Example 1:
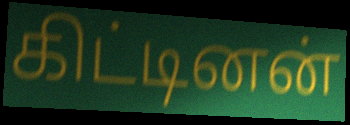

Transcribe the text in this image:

கிட்டினன்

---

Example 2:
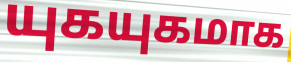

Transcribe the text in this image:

யுகயுகமாக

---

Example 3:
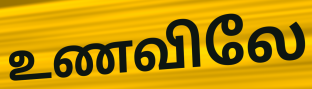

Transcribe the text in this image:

உணவிலே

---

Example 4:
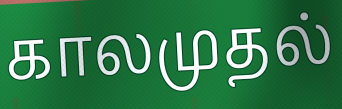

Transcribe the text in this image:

காலமுதல்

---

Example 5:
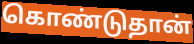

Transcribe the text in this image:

கொண்டுதான்